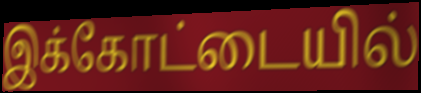
இக்கோட்டையில்